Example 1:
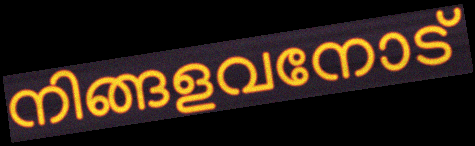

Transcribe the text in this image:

നിങ്ങളവനോട്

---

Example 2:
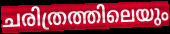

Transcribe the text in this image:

ചരിത്രത്തിലെയും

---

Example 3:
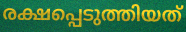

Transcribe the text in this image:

രക്ഷപ്പെടുത്തിയത്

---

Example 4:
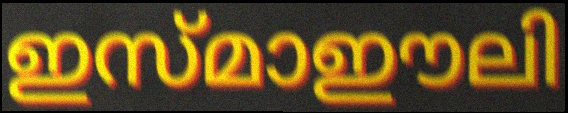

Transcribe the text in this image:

ഇസ്മാഈലി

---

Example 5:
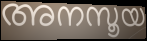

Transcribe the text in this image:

അനസൂയ